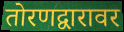
तोरणद्वारावर